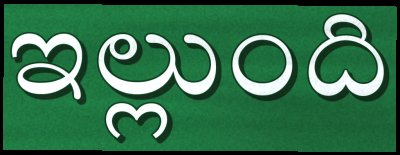
ఇల్లుంది